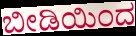
ಬೀಡಿಯಿಂದ